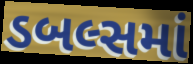
ડબલ્સમાં